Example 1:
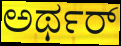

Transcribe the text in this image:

ಅರ್ಥರ್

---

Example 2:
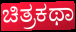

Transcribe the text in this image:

ಚಿತ್ರಕಥಾ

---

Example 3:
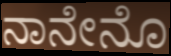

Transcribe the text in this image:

ನಾನೇನೊ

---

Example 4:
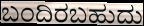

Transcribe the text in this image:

ಬಂದಿರಬಹುದು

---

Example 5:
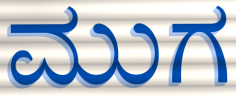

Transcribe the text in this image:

ಮುಗ